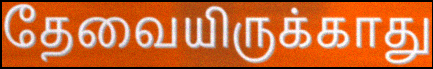
தேவையிருக்காது